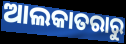
ଆଲକାତରାରୁ